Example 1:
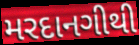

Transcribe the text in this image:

મરદાનગીથી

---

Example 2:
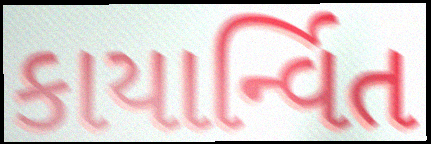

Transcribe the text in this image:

કાયાર્ન્વિત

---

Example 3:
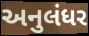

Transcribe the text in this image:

અનુલંધર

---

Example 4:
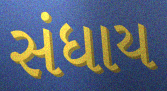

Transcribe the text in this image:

સંધાય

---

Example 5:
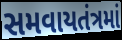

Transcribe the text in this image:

સમવાયતંત્રમાં